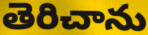
తెరిచాను